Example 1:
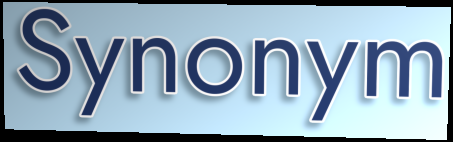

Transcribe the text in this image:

Synonym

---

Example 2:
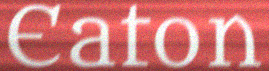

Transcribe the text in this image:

Eaton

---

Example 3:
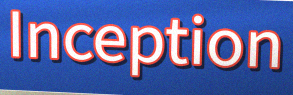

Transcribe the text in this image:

Inception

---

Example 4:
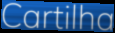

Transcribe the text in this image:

Cartilha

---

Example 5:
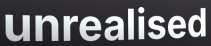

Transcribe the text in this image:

unrealised